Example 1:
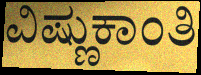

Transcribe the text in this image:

ವಿಷ್ಣುಕಾಂತಿ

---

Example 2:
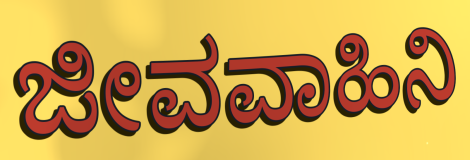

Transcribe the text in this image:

ಜೀವವಾಹಿನಿ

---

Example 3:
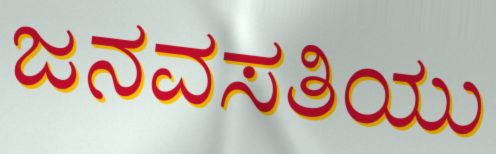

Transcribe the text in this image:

ಜನವಸತಿಯು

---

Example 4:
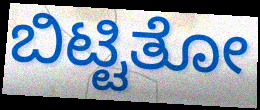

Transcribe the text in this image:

ಬಿಟ್ಟಿತೋ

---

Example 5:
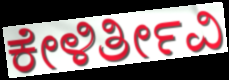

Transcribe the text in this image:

ಕೇಳಿರ್ತೀವಿ